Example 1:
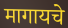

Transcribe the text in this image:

मागायचे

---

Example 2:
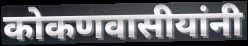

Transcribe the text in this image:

कोकणवासीयांनी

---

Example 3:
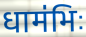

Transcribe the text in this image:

धाम॑भिः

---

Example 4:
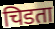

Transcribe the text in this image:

चिडता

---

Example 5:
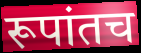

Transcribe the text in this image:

रूपांतच